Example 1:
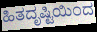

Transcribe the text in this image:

ಹಿತದೃಷ್ಟಿಯಿಂದ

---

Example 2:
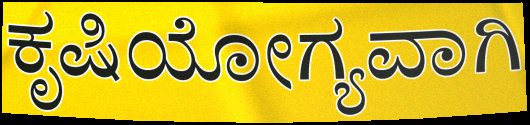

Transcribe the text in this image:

ಕೃಷಿಯೋಗ್ಯವಾಗಿ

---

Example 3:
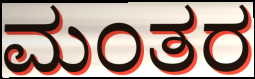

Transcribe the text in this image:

ಮಂತರ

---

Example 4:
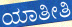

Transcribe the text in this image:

ಯಾತೀತಿ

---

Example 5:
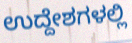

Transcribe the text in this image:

ಉದ್ದೇಶಗಳಲ್ಲಿ